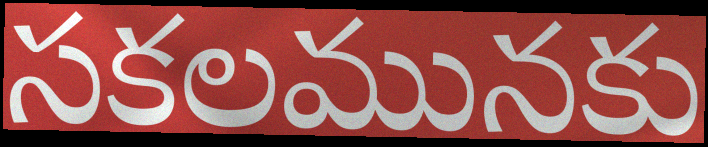
సకలమునకు